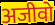
अजीवो